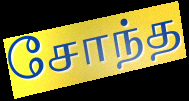
சோந்த